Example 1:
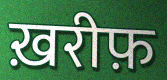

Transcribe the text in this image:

ख़रीफ़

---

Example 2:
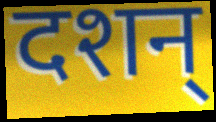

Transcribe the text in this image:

दशन्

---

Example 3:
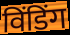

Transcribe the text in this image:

विंडिंग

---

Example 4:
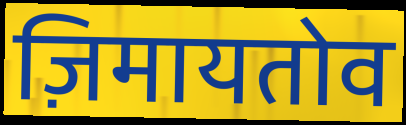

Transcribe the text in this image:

ज़िमायतोव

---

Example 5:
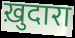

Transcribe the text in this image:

ख़ुदारा